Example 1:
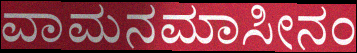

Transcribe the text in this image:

ವಾಮನಮಾಸೀನಂ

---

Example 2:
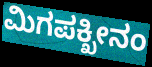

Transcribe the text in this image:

ಮಿಗಪಕ್ಖೀನಂ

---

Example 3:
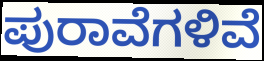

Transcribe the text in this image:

ಪುರಾವೆಗಳಿವೆ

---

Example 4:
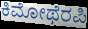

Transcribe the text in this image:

ಕಿಮೋಥೆರಪಿ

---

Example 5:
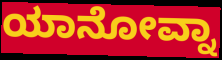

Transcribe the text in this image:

ಯಾನೋವ್ನಾ